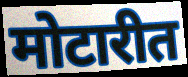
मोटारीत